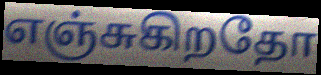
எஞ்சுகிறதோ